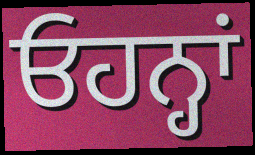
ਓਹਨ੍ਹਾਂ